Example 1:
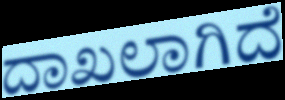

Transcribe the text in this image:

ದಾಖಲಾಗಿದೆ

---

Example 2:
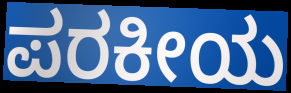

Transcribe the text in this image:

ಪರಕೀಯ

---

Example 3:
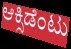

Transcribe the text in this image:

ಆಕ್ಸಿಡೆಂಟು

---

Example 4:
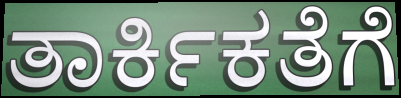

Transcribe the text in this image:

ತಾರ್ಕಿಕತೆಗೆ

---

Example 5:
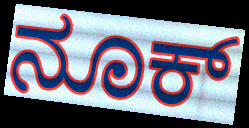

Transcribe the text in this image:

ನೂಕ್